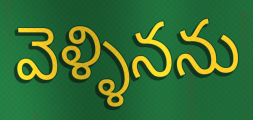
వెళ్ళినను